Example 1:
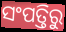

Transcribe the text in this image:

ସଂପତ୍ତିରୁ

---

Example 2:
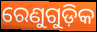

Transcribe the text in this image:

ରେଣୁଗୁଡ଼ିକ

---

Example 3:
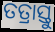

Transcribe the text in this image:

ତତ୍ରାସ୍ତୁ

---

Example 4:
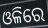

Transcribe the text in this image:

ଓଳିରେ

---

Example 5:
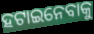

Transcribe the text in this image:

ହଟାଇନେବାକୁ